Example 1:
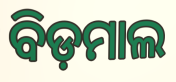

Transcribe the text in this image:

ବିଡ଼ମାଲ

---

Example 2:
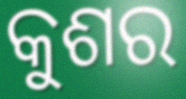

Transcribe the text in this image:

କୁଶର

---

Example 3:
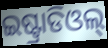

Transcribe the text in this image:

ଇଷ୍ଟ୍ରାଡିଓଲ୍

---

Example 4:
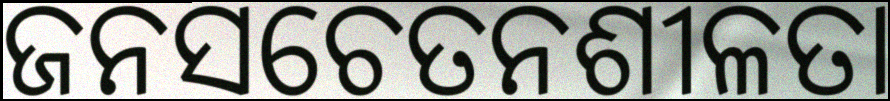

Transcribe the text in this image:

ଜନସଚେତନଶୀଳତା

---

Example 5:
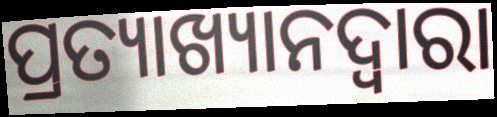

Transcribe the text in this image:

ପ୍ରତ୍ୟାଖ୍ୟାନଦ୍ଵାରା